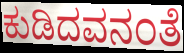
ಕುಡಿದವನಂತೆ